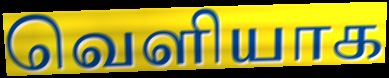
வெளியாக